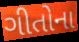
ગીતોના